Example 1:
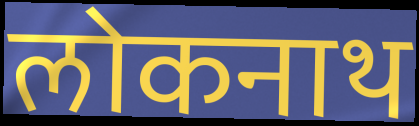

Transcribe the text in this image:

लोकनाथ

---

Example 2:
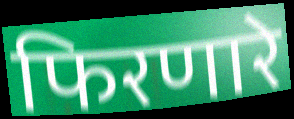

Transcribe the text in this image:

फिरणारे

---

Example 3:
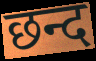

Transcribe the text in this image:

छन्द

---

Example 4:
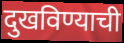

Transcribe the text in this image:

दुखविण्याची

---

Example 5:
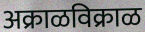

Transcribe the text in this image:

अक्राळविक्राळ